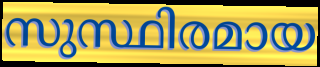
സുസ്ഥിരമായ